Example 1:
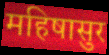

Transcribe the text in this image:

महिषासुर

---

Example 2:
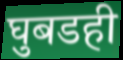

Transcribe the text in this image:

घुबडही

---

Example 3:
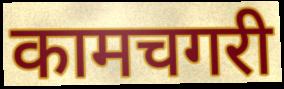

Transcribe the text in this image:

कामचगरी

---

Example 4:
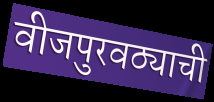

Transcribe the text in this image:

वीजपुरवठ्याची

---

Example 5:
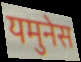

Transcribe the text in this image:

यमुनेस